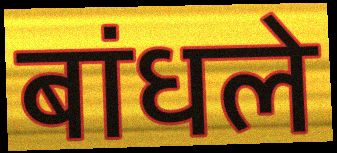
बांधले